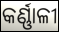
କର୍ଣ୍ଣାଳୀ